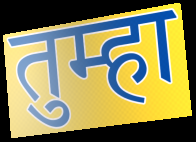
तुम्हा